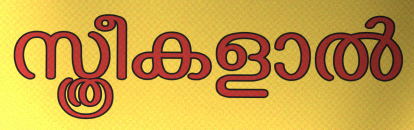
സ്ത്രീകളാൽ